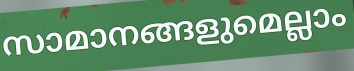
സാമാനങ്ങളുമെല്ലാം